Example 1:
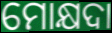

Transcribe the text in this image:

ମୋକ୍ଷଦା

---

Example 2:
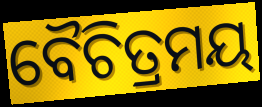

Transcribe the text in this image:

ବୈଚିତ୍ରମୟ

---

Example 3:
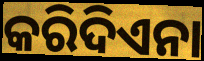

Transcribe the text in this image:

କରିଦିଏନା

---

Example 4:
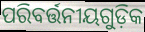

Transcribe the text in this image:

ପରିବର୍ତ୍ତନୀୟଗୁଡ଼ିକ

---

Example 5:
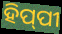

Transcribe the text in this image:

ହିପ୍‍ପୀ